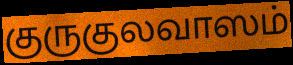
குருகுலவாஸம்